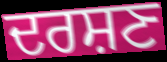
ਦਰਸ਼ਣ